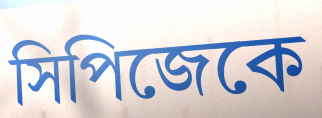
সিপিজেকে